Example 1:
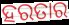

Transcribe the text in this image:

ହରତାର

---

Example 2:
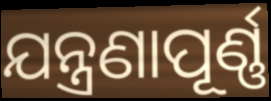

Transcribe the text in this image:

ଯନ୍ତ୍ରଣାପୂର୍ଣ୍ଣ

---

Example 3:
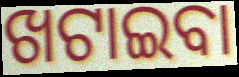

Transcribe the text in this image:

ଖଟାଇବା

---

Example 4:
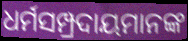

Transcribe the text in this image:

ଧର୍ମସମ୍ପ୍ରଦାୟମାନଙ୍କ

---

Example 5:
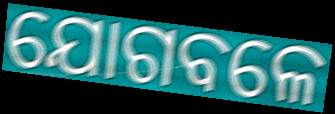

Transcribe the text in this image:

ଯୋଗବଳେ